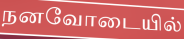
நனவோடையில்